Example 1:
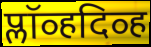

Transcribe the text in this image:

प्लॉव्हदिव्ह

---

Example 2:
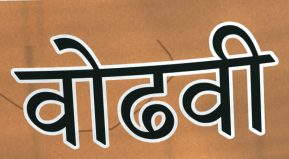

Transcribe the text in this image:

वोढवी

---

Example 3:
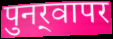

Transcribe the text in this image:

पुनर्वापर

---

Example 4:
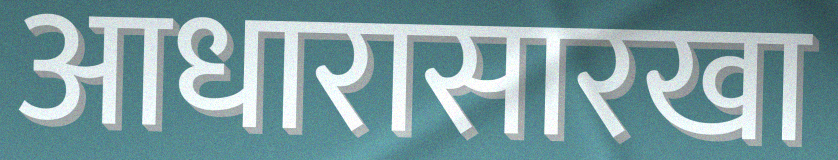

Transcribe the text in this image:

आधारासारखा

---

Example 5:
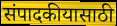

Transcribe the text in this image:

संपादकीयासाठी